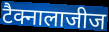
टैक्नालाजीज